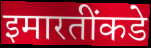
इमारतींकडे